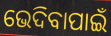
ଭେଦିବାପାଇଁ